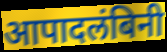
आपादलंबिनी